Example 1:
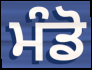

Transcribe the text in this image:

ਮੰਡੋ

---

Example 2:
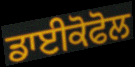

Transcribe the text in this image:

ਡਾਈਕੋਫੋਲ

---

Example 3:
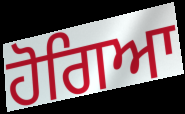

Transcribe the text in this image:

ਹੋਗਿਆ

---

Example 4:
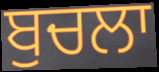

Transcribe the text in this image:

ਬੁਚਲਾ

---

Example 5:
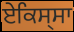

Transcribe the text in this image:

ਏਕਿਸ੍ਸਾ